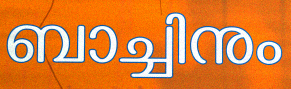
ബാച്ചിനും